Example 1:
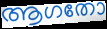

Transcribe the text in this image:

ആഗതോ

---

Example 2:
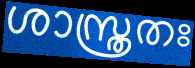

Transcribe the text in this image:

ശാസ്ത്രതഃ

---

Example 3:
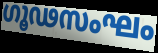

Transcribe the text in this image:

ഗൂഢസംഘം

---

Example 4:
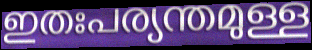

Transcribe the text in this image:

ഇതഃപര്യന്തമുള്ള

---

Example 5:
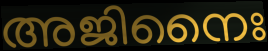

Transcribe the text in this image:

അജിനൈഃ